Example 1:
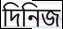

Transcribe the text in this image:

দিনিজ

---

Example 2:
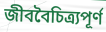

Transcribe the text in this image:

জীববৈচিত্র্যপূর্ণ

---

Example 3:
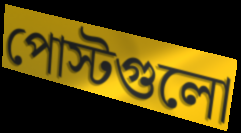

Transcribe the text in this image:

পোস্টগুলো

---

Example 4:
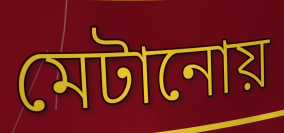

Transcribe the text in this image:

মেটানোয়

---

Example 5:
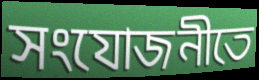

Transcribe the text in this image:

সংযোজনীতে